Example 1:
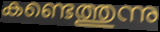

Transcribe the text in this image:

കണ്ടെത്തുന്നു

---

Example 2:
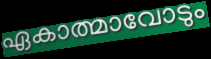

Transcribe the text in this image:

ഏകാത്മാവോടും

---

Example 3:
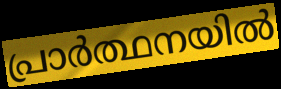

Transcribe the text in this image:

പ്രാർത്ഥനയിൽ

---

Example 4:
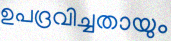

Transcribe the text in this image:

ഉപദ്രവിച്ചതായും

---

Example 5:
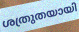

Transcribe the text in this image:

ശത്രുതയായി